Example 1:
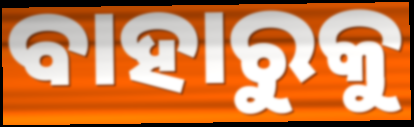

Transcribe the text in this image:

ବାହାରୁକୁ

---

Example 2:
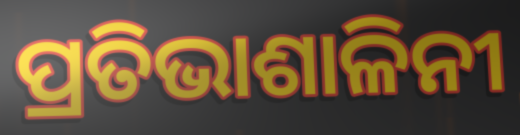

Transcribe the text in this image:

ପ୍ରତିଭାଶାଳିନୀ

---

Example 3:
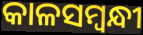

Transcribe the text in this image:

କାଳସମ୍ଵନ୍ଧୀ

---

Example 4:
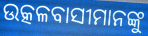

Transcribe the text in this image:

ଉତ୍କଳବାସୀମାନଙ୍କୁ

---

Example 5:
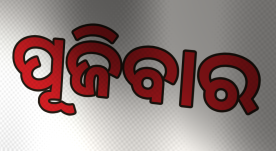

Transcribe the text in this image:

ପୂଜିବାର